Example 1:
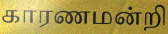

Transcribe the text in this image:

காரணமன்றி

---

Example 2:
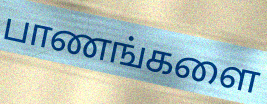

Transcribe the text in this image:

பாணங்களை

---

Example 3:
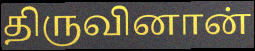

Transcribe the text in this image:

திருவினான்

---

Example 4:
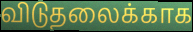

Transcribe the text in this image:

விடுதலைக்காக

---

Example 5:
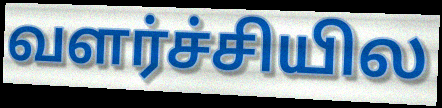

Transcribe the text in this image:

வளர்ச்சியில